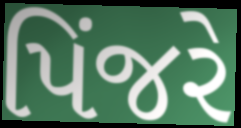
પિંજરે